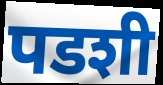
पडशी